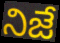
నిజే